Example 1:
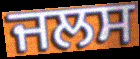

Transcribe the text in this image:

ਜਲਸ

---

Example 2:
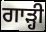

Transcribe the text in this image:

ਗਾੜ੍ਹੀ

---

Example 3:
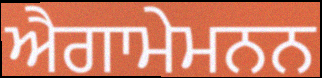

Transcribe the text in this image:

ਐਗਾਮੇਮਨਨ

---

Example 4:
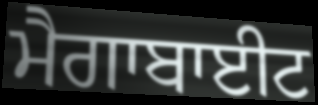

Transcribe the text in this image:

ਮੈਗਾਬਾਈਟ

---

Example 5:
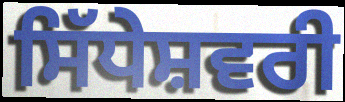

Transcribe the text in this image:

ਸਿੱਧੇਸ਼ਵਰੀ